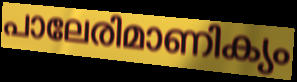
പാലേരിമാണിക്യം